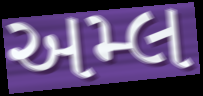
અમ્લ